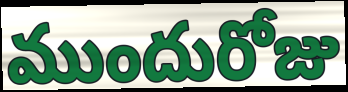
ముందురోజు